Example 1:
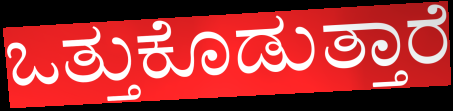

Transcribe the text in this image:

ಒತ್ತುಕೊಡುತ್ತಾರೆ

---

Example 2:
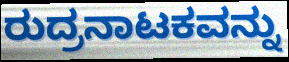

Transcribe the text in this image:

ರುದ್ರನಾಟಕವನ್ನು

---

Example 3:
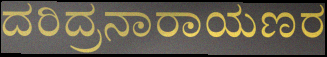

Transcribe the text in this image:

ದರಿದ್ರನಾರಾಯಣರ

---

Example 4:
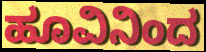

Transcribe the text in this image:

ಹೂವಿನಿಂದ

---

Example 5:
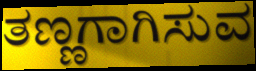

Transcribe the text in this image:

ತಣ್ಣಗಾಗಿಸುವ